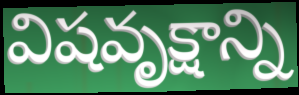
విషవృక్షాన్ని